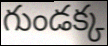
గుండక్క